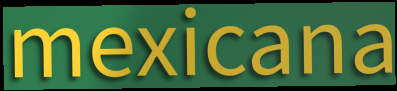
mexicana